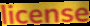
license